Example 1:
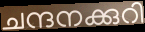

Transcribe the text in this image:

ചന്ദനക്കുറി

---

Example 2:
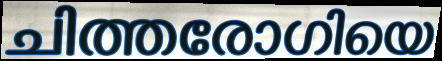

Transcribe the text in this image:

ചിത്തരോഗിയെ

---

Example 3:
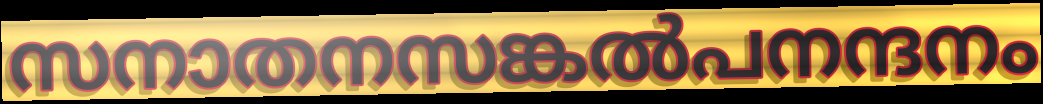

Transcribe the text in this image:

സനാതനസങ്കൽപനന്ദനം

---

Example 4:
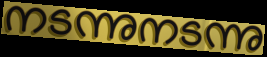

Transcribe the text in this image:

നടന്നുനടന്നു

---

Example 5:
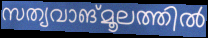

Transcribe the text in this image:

സത്യവാങ്മൂലത്തിൽ